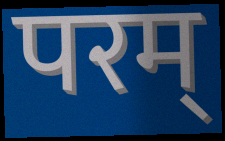
परम्